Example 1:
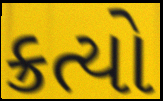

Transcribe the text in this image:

ક્રત્યો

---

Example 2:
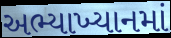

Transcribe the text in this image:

અભ્યાખ્યાનમાં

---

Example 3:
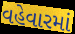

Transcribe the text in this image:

વહેવારમાં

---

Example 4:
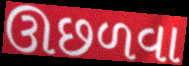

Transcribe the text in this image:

ઊછળવા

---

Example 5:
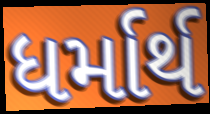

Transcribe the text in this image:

ધર્માર્થ